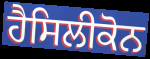
ਹੈਸਿਲੀਕੋਨ